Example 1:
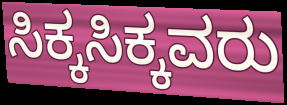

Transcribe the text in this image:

ಸಿಕ್ಕಸಿಕ್ಕವರು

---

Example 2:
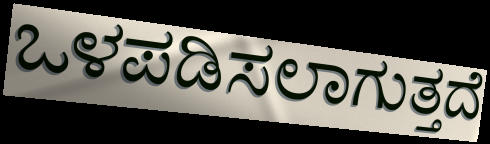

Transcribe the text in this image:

ಒಳಪಡಿಸಲಾಗುತ್ತದೆ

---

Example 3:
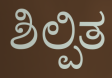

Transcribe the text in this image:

ಶಿಲ್ಪಿತ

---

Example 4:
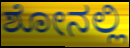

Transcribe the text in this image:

ಶೋನಲ್ಲಿ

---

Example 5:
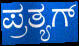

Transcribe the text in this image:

ಪ್ರತ್ಯಗ್